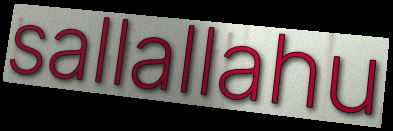
sallallahu